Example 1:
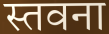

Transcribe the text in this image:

स्तवना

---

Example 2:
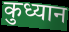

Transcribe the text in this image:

कुध्यान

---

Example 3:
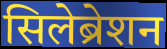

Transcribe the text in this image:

सिलेब्रेशन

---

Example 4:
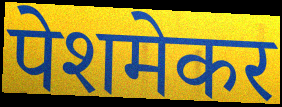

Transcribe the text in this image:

पेशमेकर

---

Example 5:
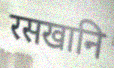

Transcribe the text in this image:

रसखानि